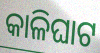
କାଳିଘାଟ